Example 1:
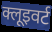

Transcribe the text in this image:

क्लूइवर्ट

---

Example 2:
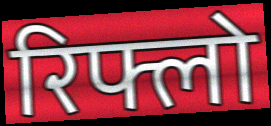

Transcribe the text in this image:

रिफ्लो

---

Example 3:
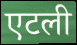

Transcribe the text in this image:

एटली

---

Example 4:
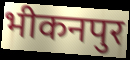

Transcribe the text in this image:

भीकनपुर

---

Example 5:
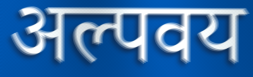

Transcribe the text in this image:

अल्पवय